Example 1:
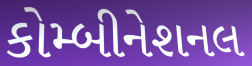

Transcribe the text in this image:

કોમ્બીનેશનલ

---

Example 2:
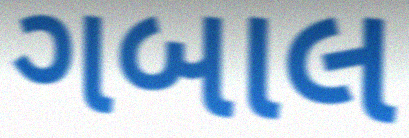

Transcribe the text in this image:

ગબાલ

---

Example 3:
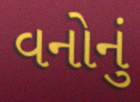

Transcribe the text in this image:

વનોનું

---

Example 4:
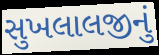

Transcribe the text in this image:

સુખલાલજીનું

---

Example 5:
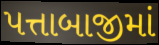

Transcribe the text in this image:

પત્તાબાજીમાં